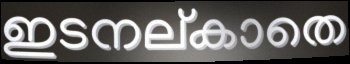
ഇടനല്കാതെ